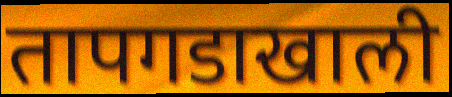
तापगडाखाली